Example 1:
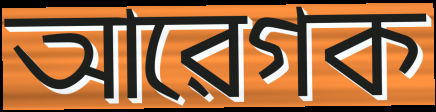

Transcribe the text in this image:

আৱেগক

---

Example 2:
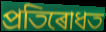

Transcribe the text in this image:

প্ৰতিৰোধত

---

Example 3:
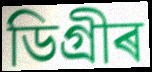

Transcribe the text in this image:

ডিগ্ৰীৰ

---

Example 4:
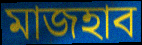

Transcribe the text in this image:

মাজহাব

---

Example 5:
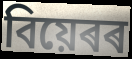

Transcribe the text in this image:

বিয়েৰৰ